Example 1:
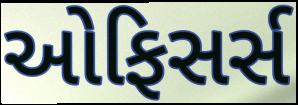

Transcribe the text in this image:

ઓફિસર્સ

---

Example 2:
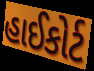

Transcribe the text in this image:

હાઈકોર્ટ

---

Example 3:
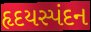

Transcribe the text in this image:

હૃદયસ્પંદન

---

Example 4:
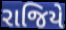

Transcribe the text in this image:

રાજિયે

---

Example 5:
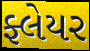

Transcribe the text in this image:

ફ્લેયર